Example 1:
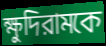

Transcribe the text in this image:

ক্ষুদিরামকে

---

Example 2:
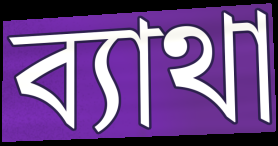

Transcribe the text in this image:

ব্যাথা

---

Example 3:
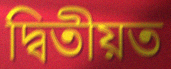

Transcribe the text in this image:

দ্বিতীয়ত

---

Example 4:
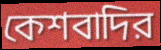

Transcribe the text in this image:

কেশবাদির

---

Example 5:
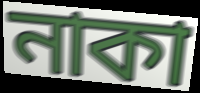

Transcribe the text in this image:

নাকা